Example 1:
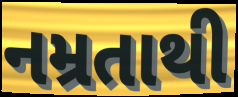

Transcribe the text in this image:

નમ્રતાથી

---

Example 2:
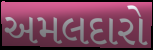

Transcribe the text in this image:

અમલદારો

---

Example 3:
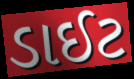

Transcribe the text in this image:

ડાઈટ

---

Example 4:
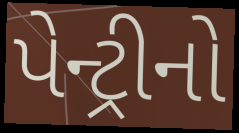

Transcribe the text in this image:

પેન્ટ્રીનો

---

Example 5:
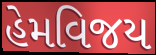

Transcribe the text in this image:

હેમવિજય